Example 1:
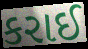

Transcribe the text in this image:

કરાઈ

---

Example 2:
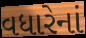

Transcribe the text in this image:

વધારેનાં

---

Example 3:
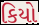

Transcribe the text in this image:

કિયો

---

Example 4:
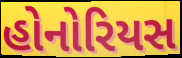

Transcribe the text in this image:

હોનોરિયસ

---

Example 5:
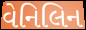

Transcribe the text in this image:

વેનિલિન